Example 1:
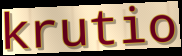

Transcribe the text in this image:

krutio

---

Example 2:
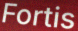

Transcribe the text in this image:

Fortis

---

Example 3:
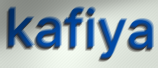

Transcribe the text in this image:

kafiya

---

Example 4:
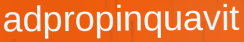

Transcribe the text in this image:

adpropinquavit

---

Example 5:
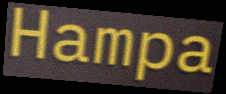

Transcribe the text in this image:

Hampa